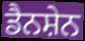
ਡੈਨਸ਼ੇਨ